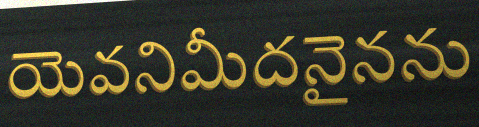
యెవనిమీదనైనను